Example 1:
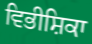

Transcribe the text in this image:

ਵਿਭੀਸ਼ਿਕਾ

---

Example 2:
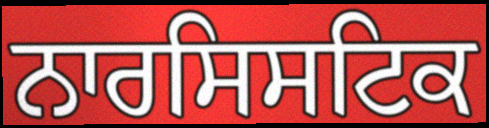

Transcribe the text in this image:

ਨਾਰਸਿਸਟਿਕ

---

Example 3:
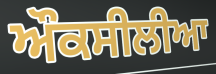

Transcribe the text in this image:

ਔਕਸੀਲੀਆ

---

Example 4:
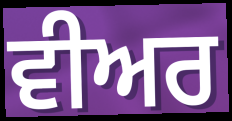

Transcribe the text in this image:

ਵੀਅਰ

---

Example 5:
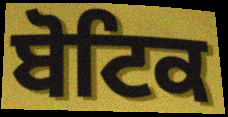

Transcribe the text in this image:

ਬੋਟਿਕ